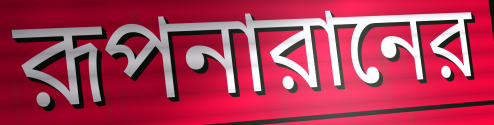
রূপনারানের